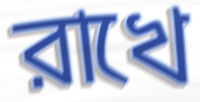
রাখে